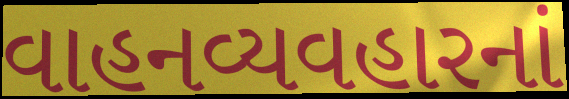
વાહનવ્યવહારનાં